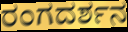
ರಂಗದರ್ಶನ